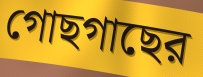
গোছগাছের